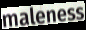
maleness